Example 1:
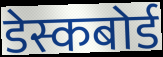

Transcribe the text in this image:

डेस्कबोर्ड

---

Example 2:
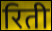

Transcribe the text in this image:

रिती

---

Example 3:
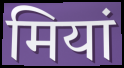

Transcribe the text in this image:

मियां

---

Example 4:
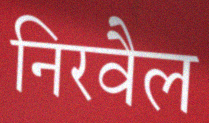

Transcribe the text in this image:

निरवैल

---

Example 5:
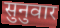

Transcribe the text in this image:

सुनुवार